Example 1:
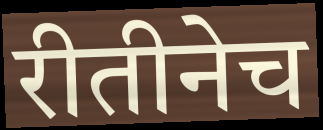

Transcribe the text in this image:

रीतीनेच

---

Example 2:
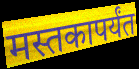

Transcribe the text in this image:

मस्तकापर्यंत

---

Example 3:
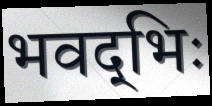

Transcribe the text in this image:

भवद्‌भिः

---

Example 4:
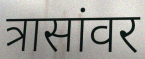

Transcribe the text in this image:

त्रासांवर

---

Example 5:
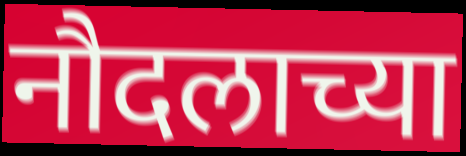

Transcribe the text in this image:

नौदलाच्या